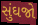
સુંઘજો